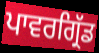
ਪਾਵਰਗ੍ਰਿੱਡ